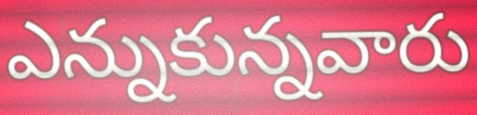
ఎన్నుకున్నవారు